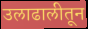
उलाढालीतून